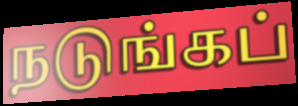
நடுங்கப்